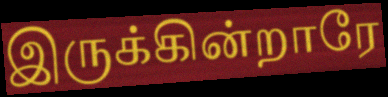
இருக்கின்றாரே